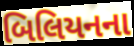
બિલિયનના